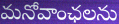
మనోవాంఛలను